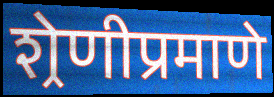
श्रेणीप्रमाणे